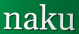
naku